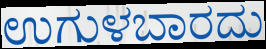
ಉಗುಳಬಾರದು